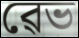
ৱেভ